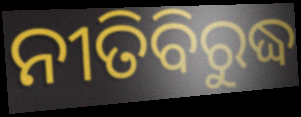
ନୀତିବିରୁଦ୍ଧ